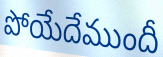
పోయేదేముందీ